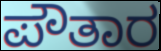
ಪೌತಾರ